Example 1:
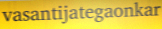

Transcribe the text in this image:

vasantijategaonkar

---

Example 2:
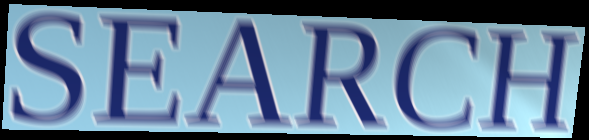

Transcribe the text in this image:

SEARCH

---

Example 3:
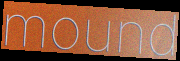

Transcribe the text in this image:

mound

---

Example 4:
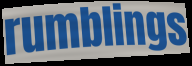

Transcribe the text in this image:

rumblings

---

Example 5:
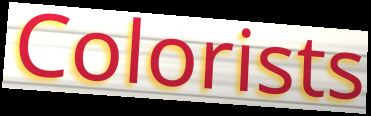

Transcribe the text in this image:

Colorists